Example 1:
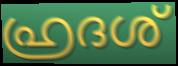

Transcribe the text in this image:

ഹ്രദശ്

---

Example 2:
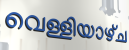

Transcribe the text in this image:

വെള്ളിയാഴ്‌ച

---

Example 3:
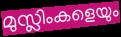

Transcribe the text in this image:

മുസ്ലിംകളെയും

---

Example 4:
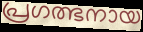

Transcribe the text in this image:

പ്രഗത്ഭനായ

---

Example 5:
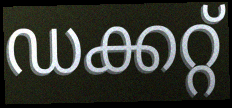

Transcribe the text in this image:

ഡക്കറ്റ്